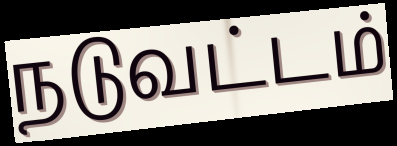
நடுவட்டம்